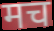
मच